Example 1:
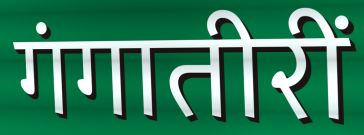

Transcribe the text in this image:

गंगातीरीं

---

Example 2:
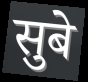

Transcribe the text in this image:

सुबे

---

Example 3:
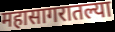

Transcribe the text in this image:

महासागरातल्या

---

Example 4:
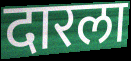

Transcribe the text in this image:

दारला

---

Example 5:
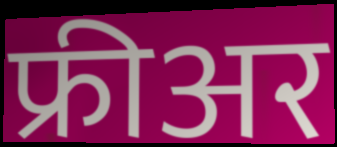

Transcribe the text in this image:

फ्रीअर